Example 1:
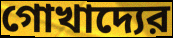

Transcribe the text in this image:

গোখাদ্যের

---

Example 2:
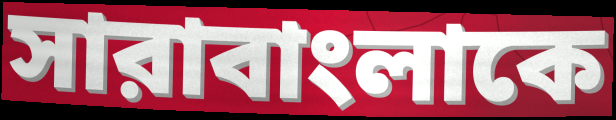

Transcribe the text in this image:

সারাবাংলাকে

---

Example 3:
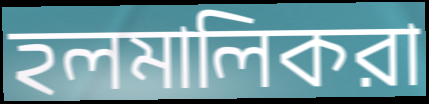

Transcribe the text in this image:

হলমালিকরা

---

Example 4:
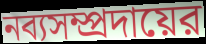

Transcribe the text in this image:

নব্যসম্প্রদায়ের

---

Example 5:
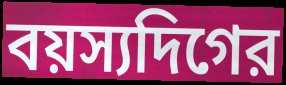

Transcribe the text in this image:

বয়স্যদিগের